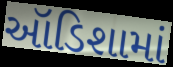
ઑડિશામાં